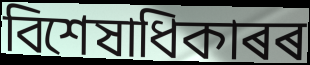
বিশেষাধিকাৰৰ